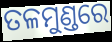
ତଳମୁଣ୍ଡରେ